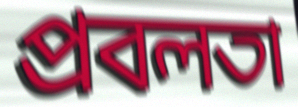
প্ৰবলতা